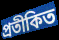
প্ৰতীকিত